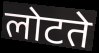
लोटते